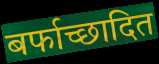
बर्फाच्छादित